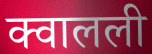
क्वालली